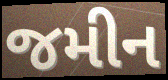
જમીન